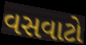
વસવાટો